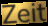
Zeit